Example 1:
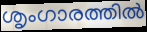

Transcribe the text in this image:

ശൃംഗാരത്തിൽ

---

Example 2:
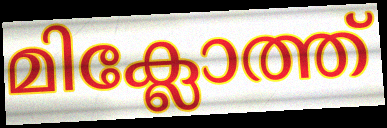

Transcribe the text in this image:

മിക്ലോത്ത്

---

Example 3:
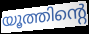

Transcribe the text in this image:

യൂത്തിന്റെ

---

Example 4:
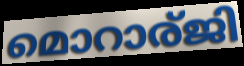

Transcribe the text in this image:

മൊറാര്ജി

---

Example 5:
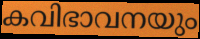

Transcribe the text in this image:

കവിഭാവനയും